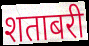
शताबरी